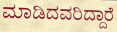
ಮಾಡಿದವರಿದ್ದಾರೆ